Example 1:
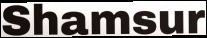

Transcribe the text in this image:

Shamsur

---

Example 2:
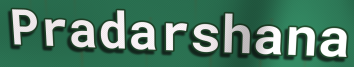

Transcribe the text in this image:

Pradarshana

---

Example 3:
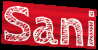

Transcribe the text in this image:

Sani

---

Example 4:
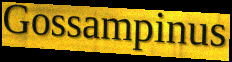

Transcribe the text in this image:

Gossampinus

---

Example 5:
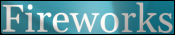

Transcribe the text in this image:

Fireworks